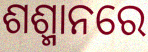
ଶଶ୍ମାନରେ